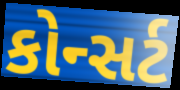
કોન્સર્ટ